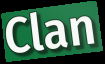
Clan